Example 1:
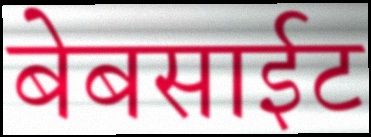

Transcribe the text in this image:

बेबसाईट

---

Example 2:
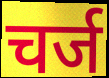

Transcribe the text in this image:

चर्ज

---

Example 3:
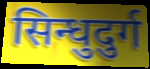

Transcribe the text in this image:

सिन्धुदुर्ग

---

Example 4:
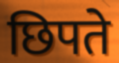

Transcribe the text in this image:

छिपते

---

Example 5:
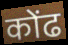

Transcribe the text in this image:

कोंढ